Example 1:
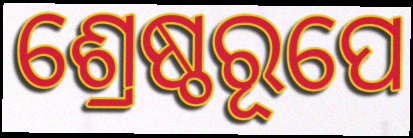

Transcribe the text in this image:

ଶ୍ରେଷ୍ଠରୂପେ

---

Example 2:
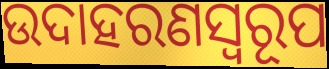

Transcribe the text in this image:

ଉଦାହରଣସ୍ୱରୂପ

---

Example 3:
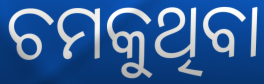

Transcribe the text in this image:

ଚମକୁଥିବା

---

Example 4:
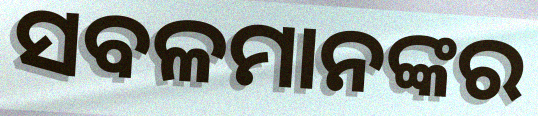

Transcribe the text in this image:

ସବଳମାନଙ୍କର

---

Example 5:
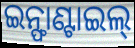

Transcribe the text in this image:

ଇନ୍ଫାଣ୍ଟାଇଲ୍